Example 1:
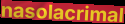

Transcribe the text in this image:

nasolacrimal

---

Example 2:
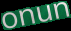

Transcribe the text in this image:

onun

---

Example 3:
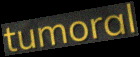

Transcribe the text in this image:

tumoral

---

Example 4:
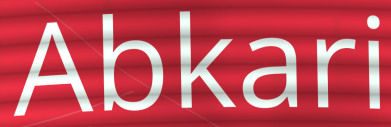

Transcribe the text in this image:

Abkari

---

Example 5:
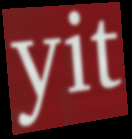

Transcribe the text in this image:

yit